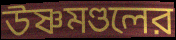
উষ্ণমণ্ডলের